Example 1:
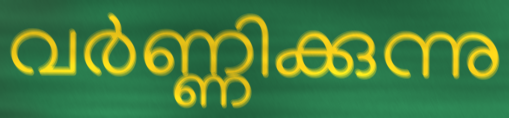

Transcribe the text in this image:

വർണ്ണിക്കുന്നു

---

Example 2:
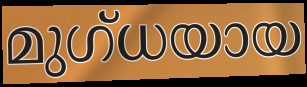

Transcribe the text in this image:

മുഗ്ധയായ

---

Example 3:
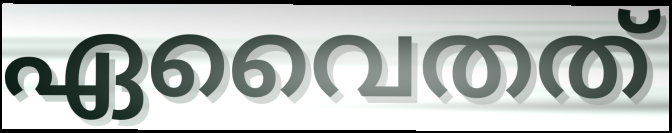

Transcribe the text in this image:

ഏവൈതത്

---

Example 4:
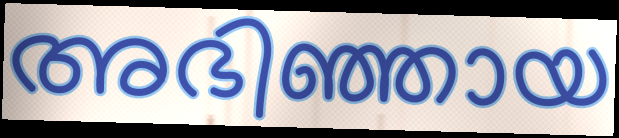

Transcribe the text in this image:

അഭിഞ്ഞായ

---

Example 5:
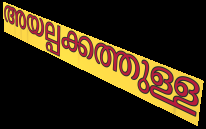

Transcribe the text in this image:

അയല്പക്കത്തുള്ള